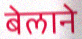
बेलाने